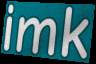
imk